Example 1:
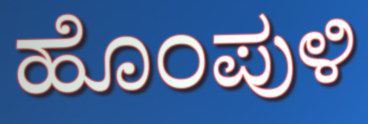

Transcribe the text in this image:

ಹೊಂಪುಳಿ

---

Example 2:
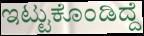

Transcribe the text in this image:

ಇಟ್ಟುಕೊಂಡಿದ್ದೆ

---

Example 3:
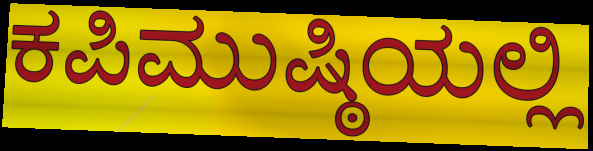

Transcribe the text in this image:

ಕಪಿಮುಷ್ಠಿಯಲ್ಲಿ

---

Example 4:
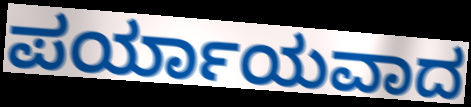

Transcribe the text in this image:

ಪರ್ಯಾಯವಾದ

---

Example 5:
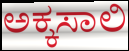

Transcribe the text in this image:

ಅಕ್ಕಸಾಲಿ